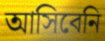
আসিবেনি